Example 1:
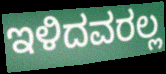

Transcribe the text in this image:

ಇಳಿದವರಲ್ಲ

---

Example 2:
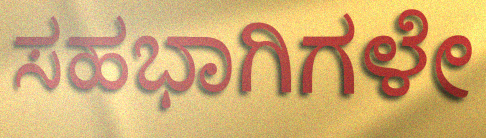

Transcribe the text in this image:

ಸಹಭಾಗಿಗಳೇ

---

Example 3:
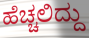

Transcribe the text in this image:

ಹೆಚ್ಚಲಿದ್ದು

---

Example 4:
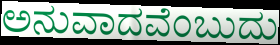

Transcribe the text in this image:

ಅನುವಾದವೆಂಬುದು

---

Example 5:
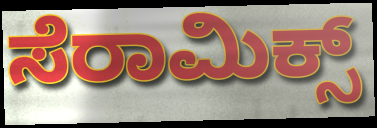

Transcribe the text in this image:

ಸೆರಾಮಿಕ್ಸ್